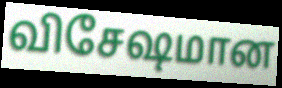
விசேஷமான